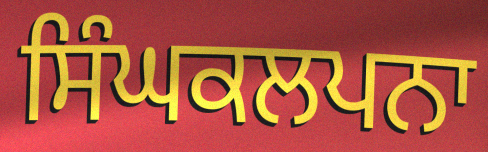
ਸਿੰਘਕਲਪਨਾ